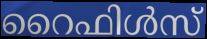
റൈഫിൾസ്